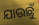
ଯାଉଛୁଁ